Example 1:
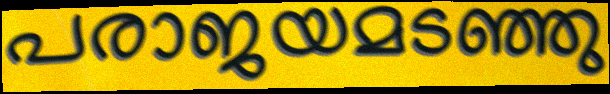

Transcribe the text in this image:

പരാജയമടഞ്ഞു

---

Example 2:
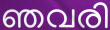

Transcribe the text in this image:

ഞവരി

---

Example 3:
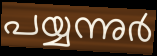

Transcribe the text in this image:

പയ്യന്നുർ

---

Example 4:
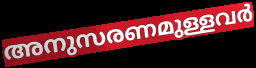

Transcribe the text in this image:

അനുസരണമുള്ളവർ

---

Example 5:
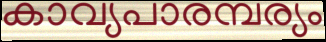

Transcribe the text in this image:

കാവ്യപാരമ്പര്യം